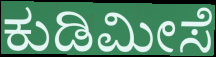
ಕುಡಿಮೀಸೆ